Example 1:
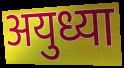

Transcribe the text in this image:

अयुध्या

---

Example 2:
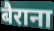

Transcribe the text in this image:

बैराना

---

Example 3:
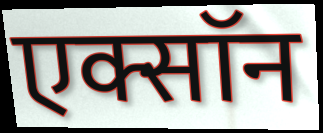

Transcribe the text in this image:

एक्सॉन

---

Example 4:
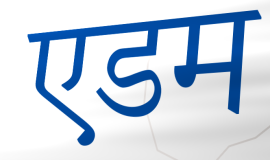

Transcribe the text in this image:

एडम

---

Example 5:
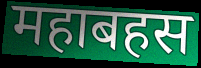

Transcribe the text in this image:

महाबहस